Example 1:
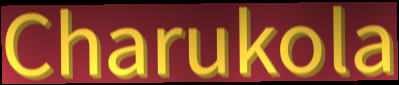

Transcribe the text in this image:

Charukola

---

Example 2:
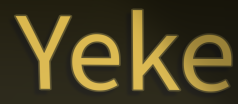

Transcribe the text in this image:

Yeke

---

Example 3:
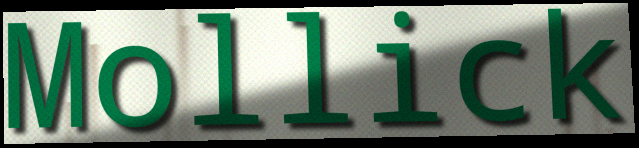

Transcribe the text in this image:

Mollick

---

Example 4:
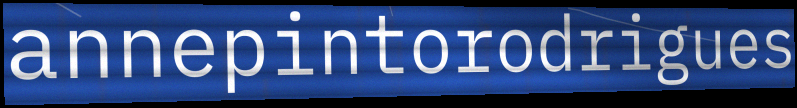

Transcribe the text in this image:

annepintorodrigues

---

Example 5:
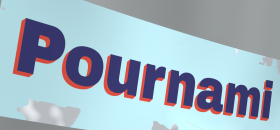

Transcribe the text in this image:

Pournami